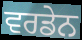
ਵਰਡੇਨ